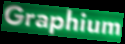
Graphium